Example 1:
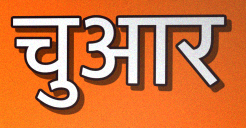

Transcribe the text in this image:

चुआर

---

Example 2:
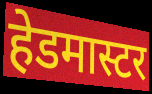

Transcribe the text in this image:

हेडमास्टर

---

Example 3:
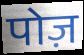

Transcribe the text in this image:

पोज़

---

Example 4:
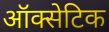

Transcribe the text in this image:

ऑक्सेटिक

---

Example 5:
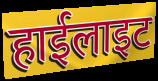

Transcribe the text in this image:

हाईलाइट